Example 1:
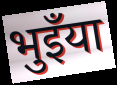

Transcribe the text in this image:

भुइँया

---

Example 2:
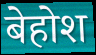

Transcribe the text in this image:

बेहोश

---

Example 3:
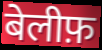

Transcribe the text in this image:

बेलीफ़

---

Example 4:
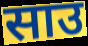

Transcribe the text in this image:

साउ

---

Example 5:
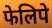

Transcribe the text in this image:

फेलिपे